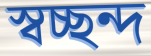
স্বচ্ছন্দ